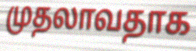
முதலாவதாக